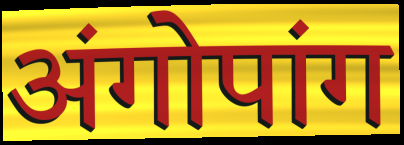
अंगोपांग